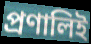
প্রণালিই